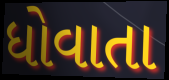
ધોવાતા